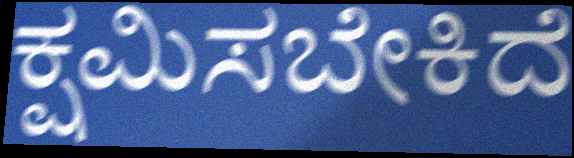
ಕ್ಷಮಿಸಬೇಕಿದೆ